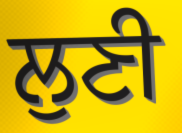
ਲੁਣੀ